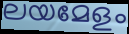
ലയമേളം